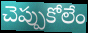
చెప్పుకోలేం